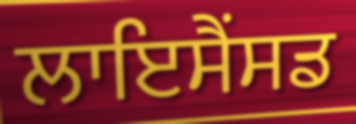
ਲਾਇਸੈਂਸਡ